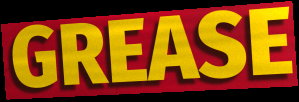
GREASE